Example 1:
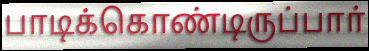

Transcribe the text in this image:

பாடிக்கொண்டிருப்பார்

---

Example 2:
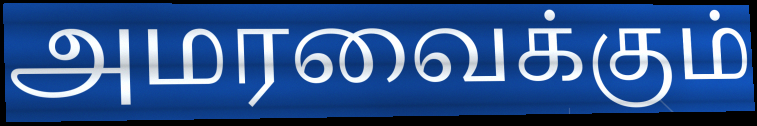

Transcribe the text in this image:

அமரவைக்கும்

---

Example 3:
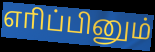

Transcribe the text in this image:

எரிப்பினும்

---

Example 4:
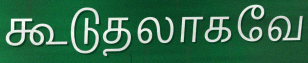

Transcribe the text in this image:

கூடுதலாகவே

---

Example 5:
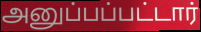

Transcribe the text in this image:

அனுப்பப்பட்டார்